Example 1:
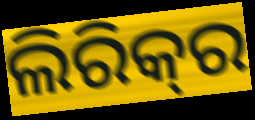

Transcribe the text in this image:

ଲିରିକ୍‍ର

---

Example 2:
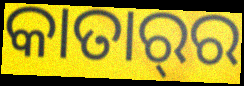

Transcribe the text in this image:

କାତାର୍‌ର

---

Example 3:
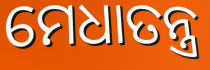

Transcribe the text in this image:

ମେଧାତନ୍ତ୍ର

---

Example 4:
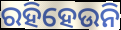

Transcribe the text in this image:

ରହିହେଉନି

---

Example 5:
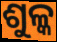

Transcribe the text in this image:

ଶୁଳ୍କ